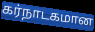
கர்நாடகமான